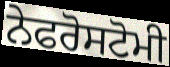
ਨੇਫਰੋਸਟੋਮੀ